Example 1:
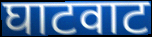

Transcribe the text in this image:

घाटवाट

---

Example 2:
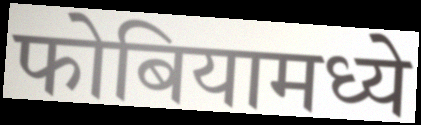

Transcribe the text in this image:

फोबियामध्ये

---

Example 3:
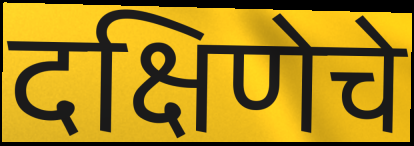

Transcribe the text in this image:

दक्षिणेचे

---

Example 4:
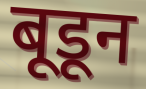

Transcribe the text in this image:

बूडून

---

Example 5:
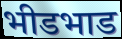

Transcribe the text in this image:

भीडभाड